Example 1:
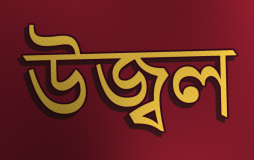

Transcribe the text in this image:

উজ্বল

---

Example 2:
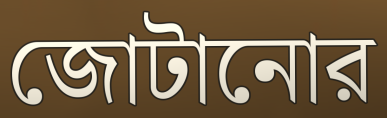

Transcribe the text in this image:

জোটানোর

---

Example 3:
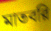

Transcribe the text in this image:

মাতবরি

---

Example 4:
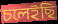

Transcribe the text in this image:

চলেইছি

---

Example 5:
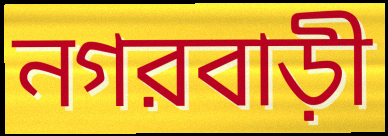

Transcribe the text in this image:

নগরবাড়ী